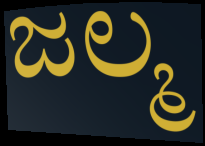
ಜಲ್ಮ